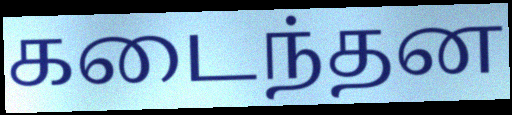
கடைந்தன